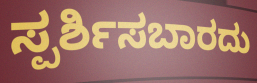
ಸ್ಪರ್ಶಿಸಬಾರದು